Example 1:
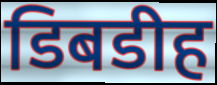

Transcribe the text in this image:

डिबडीह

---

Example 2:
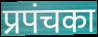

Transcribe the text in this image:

प्रपंचका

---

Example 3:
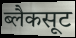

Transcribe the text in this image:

ब्लैकसूट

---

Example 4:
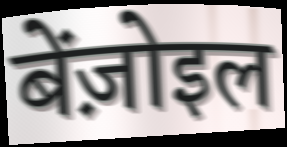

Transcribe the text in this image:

बेंज़ोइल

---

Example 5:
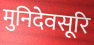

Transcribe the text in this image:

मुनिदेवसूरि